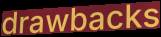
drawbacks